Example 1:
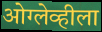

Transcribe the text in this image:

ओग्लेव्हीला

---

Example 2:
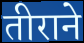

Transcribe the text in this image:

तीराने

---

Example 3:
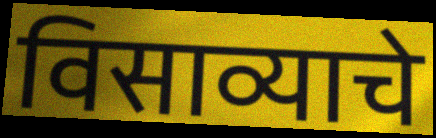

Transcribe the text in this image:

विसाव्याचे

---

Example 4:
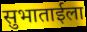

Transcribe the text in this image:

सुभाताईला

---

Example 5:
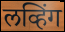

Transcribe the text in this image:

लव्हिंग